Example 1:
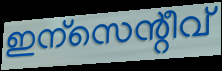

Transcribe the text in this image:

ഇന്സെന്റീവ്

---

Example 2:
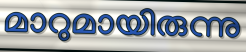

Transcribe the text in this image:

മാറുമായിരുന്നു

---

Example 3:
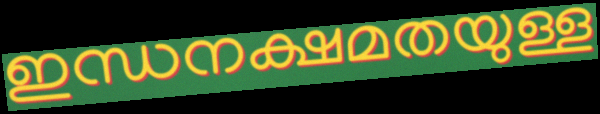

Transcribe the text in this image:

ഇന്ധനക്ഷമതയുള്ള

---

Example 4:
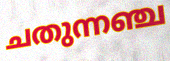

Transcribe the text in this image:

ചതുന്നഞ്ച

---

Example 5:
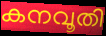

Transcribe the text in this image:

കനവൂതി